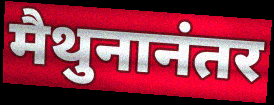
मैथुनानंतर